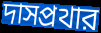
দাসপ্রথার